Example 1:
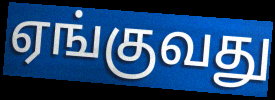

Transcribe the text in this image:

ஏங்குவது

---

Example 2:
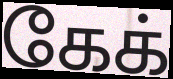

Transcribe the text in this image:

கேக்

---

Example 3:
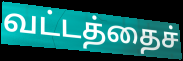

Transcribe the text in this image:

வட்டத்தைச்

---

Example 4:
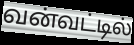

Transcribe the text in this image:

வன்வட்டில்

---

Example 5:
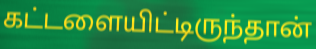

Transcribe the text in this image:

கட்டளையிட்டிருந்தான்